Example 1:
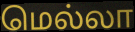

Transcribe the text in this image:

மெல்லா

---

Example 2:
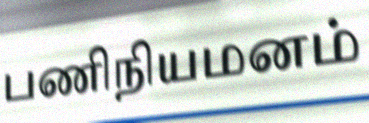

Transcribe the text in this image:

பணிநியமனம்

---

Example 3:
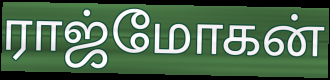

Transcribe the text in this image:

ராஜ்மோகன்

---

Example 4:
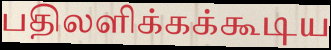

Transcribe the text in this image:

பதிலளிக்கக்கூடிய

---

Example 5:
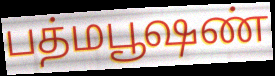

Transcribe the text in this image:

பத்மபூஷண்